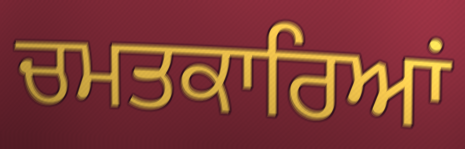
ਚਮਤਕਾਰਿਆਂ